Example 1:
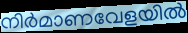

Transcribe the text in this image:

നിർമാണവേളയിൽ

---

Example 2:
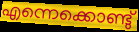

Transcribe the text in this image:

എന്നെക്കൊണ്ടു്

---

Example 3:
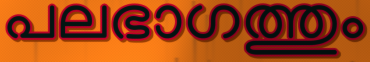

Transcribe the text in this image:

പലഭാഗത്തും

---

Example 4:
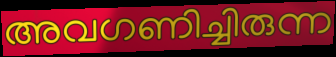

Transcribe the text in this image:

അവഗണിച്ചിരുന്ന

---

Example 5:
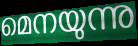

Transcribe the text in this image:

മെനയുന്നു